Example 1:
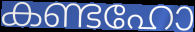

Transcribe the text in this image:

കണ്ടഹോ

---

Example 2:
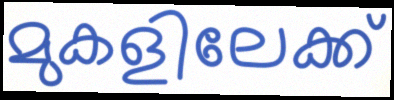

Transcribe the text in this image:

മുകളിലേക്ക്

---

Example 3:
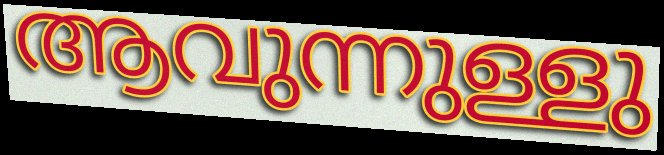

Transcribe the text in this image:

ആവുന്നുള്ളു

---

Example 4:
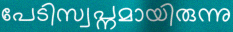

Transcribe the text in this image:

പേടിസ്വപ്നമായിരുന്നു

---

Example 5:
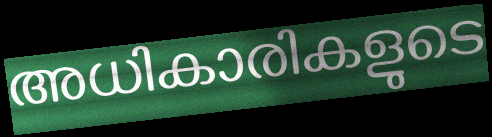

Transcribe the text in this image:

അധികാരികളുടെ